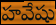
హవేషు